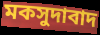
মকসুদাবাদ